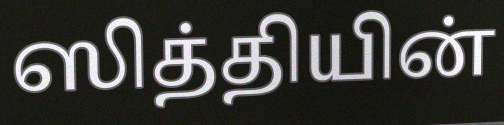
ஸித்தியின்